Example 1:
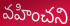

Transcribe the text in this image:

వహించని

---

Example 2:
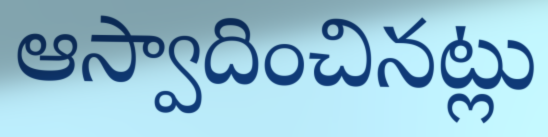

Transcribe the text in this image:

ఆస్వాదించినట్లు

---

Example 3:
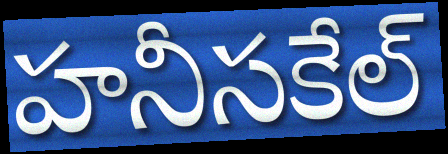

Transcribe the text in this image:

హనీసకేల్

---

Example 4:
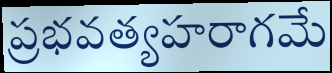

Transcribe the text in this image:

ప్రభవత్యహరాగమే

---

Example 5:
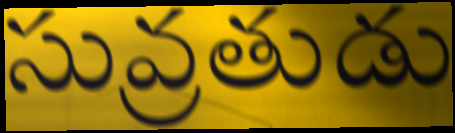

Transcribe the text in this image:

సువ్రతుడు